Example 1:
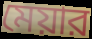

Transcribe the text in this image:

মেয়ার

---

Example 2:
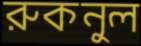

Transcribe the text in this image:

রুকনুল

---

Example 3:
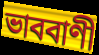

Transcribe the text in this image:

ভাববাণী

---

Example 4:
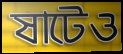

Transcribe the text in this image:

ষাটেও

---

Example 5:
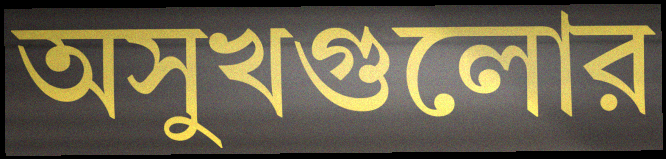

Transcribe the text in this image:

অসুখগুলোর